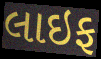
લાઇફ